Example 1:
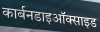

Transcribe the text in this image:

कार्बनडाइऑक्साइड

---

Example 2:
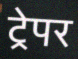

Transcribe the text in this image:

ट्रेपर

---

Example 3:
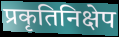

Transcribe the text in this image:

प्रकृतिनिक्षेप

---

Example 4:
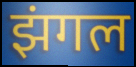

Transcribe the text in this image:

झंगल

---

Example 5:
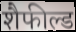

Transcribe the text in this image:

शैफील्ड